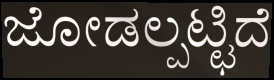
ಜೋಡಲ್ಪಟ್ಟಿದೆ